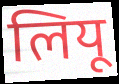
लियू